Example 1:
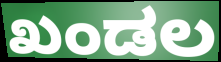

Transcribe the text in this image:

ಖಂಡಲ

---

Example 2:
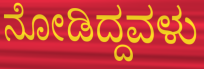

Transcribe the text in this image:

ನೋಡಿದ್ದವಳು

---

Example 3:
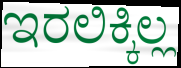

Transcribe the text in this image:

ಇರಲಿಕ್ಕಿಲ್ಲ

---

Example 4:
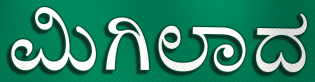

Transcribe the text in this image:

ಮಿಗಿಲಾದ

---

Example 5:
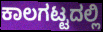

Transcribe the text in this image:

ಕಾಲಗಟ್ಟದಲ್ಲಿ